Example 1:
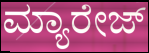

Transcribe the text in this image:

ಮ್ಯಾರೇಜ್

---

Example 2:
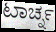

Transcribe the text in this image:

ಟಾರ್ಚ್ನ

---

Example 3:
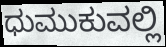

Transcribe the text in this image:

ಧುಮುಕುವಲ್ಲಿ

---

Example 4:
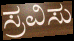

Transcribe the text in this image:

ಸ್ರವಿಸು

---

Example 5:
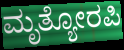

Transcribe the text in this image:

ಮೃತ್ಯೋರಪಿ